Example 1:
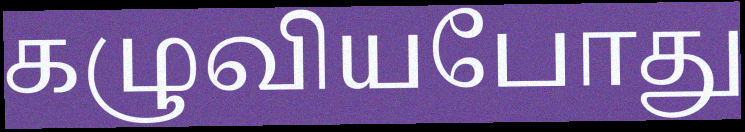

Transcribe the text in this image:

கழுவியபோது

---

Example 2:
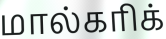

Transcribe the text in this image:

மால்கரிக்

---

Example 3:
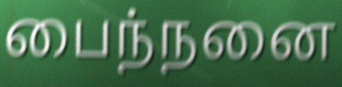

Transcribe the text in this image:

பைந்நனை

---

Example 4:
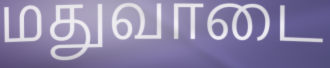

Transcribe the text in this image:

மதுவாடை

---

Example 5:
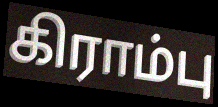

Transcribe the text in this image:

கிராம்பு